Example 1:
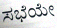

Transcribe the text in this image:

ಸಭೆಯೇ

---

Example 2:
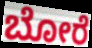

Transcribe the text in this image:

ಬೋರೆ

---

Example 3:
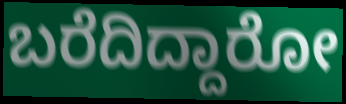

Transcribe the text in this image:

ಬರೆದಿದ್ದಾರೋ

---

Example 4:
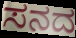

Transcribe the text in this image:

ಸನದ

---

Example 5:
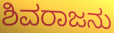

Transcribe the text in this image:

ಶಿವರಾಜನು